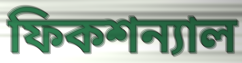
ফিকশন্যাল